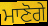
ਮਾਣੋਗੇ